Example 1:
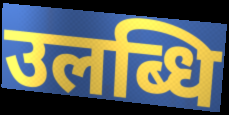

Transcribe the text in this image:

उलब्धि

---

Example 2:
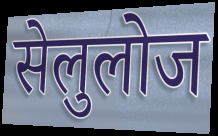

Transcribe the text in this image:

सेलुलोज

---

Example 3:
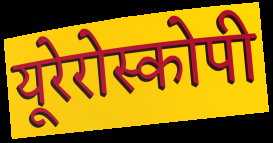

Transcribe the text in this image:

यूरेरोस्कोपी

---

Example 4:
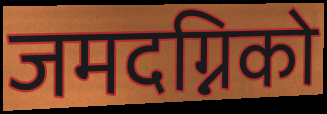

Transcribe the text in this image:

जमदग्निको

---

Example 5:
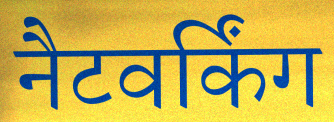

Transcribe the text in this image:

नैटवर्किंग